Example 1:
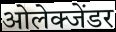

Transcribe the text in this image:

ओलेक्जेंडर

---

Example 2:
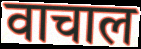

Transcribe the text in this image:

वाचाल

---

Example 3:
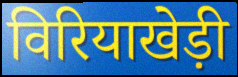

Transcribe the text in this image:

विरियाखेड़ी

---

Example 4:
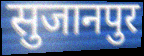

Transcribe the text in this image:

सुजानपुर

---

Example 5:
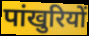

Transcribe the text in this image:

पांखुरियों